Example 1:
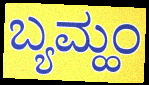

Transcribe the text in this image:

ಬ್ಯಮ್ಹಂ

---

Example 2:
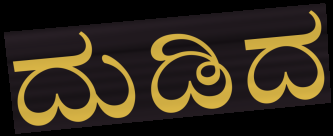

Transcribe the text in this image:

ದುಡಿದ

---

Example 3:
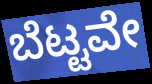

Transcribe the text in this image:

ಬೆಟ್ಟವೇ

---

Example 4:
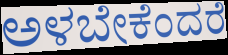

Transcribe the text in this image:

ಅಳಬೇಕೆಂದರೆ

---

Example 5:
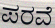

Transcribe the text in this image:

ಪರವೆ